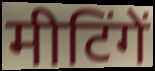
मीटिंगें